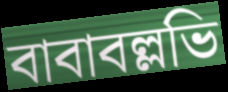
বাবাবল্লভি